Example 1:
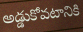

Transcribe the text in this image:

అడ్డుకోవటానికి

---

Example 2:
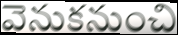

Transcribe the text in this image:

వెనుకనుంచి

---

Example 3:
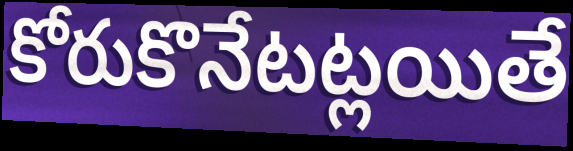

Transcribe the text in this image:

కోరుకొనేటట్లయితే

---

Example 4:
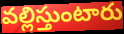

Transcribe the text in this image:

వల్లిస్తుంటారు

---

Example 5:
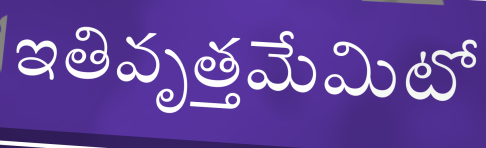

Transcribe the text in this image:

ఇతివృత్తమేమిటో